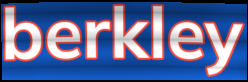
berkley